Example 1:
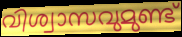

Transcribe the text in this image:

വിശ്വാസവുമുണ്ട്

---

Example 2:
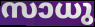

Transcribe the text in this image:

സാധു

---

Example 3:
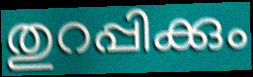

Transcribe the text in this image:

തുറപ്പിക്കും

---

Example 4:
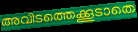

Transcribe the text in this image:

അവിടത്തെക്കൂടാതെ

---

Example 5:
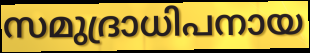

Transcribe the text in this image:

സമുദ്രാധിപനായ